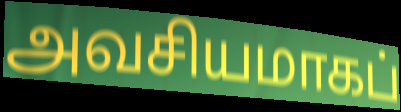
அவசியமாகப்